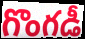
గొంగడీ